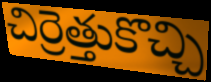
చిర్రెత్తుకొచ్చి